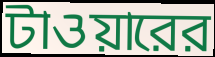
টাওয়ারের